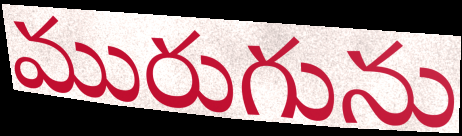
మురుగును